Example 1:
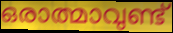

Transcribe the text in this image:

ഒരാത്മാവുണ്ട്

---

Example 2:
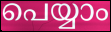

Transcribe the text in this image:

പെയ്യാം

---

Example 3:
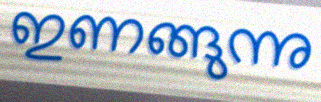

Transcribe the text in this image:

ഇണങ്ങുന്നു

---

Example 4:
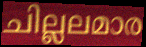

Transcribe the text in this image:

ചില്ലലമാര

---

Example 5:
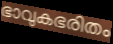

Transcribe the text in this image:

ഭാവുകഭരിതം